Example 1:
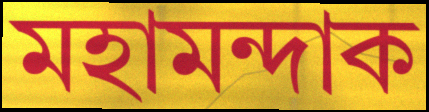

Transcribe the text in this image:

মহামন্দাক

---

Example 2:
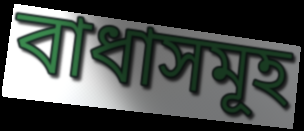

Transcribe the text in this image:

বাধাসমূহ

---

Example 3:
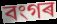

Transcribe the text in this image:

বংগৰ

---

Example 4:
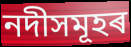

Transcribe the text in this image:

নদীসমূহৰ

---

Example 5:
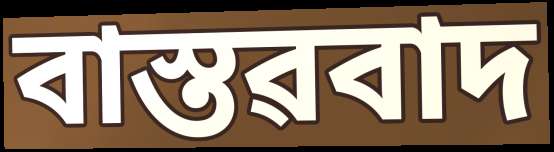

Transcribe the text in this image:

বাস্তৱবাদ